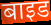
बाइड